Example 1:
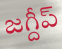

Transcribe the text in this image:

జగ్దీప్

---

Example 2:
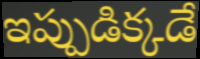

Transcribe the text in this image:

ఇప్పుడిక్కడే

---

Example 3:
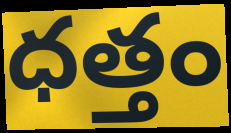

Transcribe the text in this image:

ధత్తం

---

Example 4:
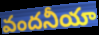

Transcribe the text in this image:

వందనీయా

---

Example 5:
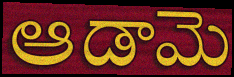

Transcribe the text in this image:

ఆడామె